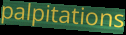
palpitations